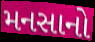
મનસાનો